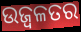
ଉଜ୍ବଳତର